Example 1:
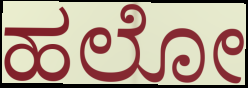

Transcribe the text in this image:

ಹಲೋ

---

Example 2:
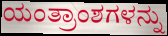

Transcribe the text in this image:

ಯಂತ್ರಾಂಶಗಳನ್ನು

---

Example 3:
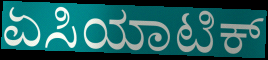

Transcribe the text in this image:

ಏಸಿಯಾಟಿಕ್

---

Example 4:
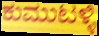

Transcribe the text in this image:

ಕುಮುಟಳ್ಳಿ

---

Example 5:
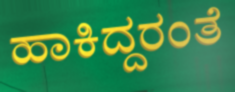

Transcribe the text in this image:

ಹಾಕಿದ್ದರಂತೆ